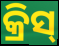
କ୍ରିସ୍